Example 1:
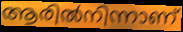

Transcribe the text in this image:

ആരിൽനിന്നാണ്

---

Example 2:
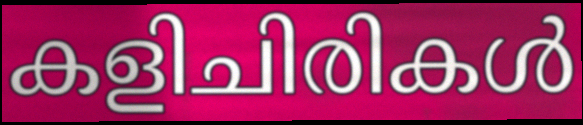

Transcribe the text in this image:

കളിചിരികൾ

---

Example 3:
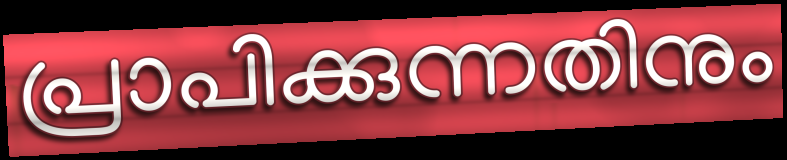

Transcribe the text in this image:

പ്രാപിക്കുന്നതിനും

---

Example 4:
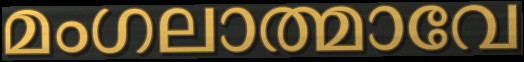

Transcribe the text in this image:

മംഗലാത്മാവേ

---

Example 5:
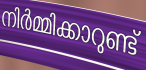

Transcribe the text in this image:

നിർമ്മിക്കാറുണ്ട്